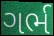
ગર્ભ